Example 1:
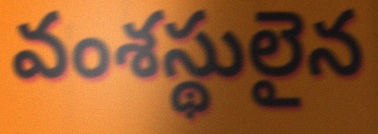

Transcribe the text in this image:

వంశస్థులైన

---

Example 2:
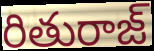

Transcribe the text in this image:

రితురాజ్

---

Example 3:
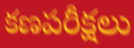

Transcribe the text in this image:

కణపరీక్షలు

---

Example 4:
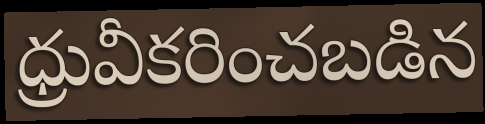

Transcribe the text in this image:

ధ్రువీకరించబడిన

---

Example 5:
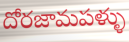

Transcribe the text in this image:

దోరజామపళ్ళు